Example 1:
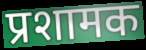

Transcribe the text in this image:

प्रशामक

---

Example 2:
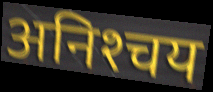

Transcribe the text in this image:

अनिश्चय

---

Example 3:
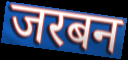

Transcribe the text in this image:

जरबन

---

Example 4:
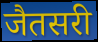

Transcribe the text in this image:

जैतसरी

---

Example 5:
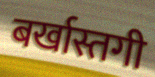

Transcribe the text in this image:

बर्खास्तगी